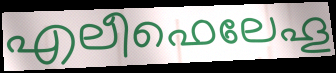
എലീഫെലേഹൂ